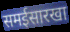
समईसारखा